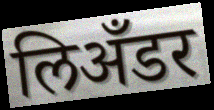
लिअँडर